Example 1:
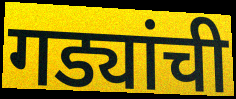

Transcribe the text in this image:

गड्यांची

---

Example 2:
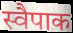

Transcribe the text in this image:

स्वैपाक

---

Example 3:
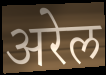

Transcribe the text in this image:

अरेल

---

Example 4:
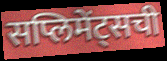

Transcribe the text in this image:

सप्लिमेंट्सची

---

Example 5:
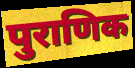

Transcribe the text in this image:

पुराणिक